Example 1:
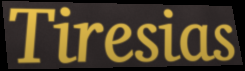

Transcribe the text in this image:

Tiresias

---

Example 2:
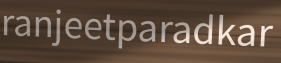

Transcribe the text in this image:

ranjeetparadkar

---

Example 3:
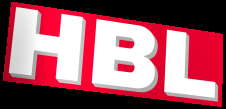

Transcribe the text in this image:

HBL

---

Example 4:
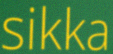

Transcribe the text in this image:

sikka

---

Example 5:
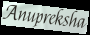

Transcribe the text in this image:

Anupreksha